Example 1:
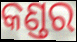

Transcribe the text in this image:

କଣ୍ଡର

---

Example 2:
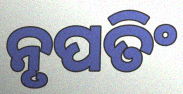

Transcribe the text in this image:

ନୃପତିଂ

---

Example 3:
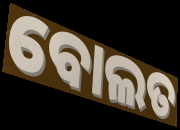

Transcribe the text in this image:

ବୋଲତ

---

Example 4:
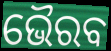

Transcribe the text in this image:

ଭୈରବ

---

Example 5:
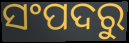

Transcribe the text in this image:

ସଂପଦରୁ